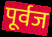
पूर्वज